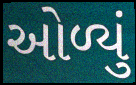
ઓળ્યું